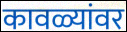
कावळ्यांवर